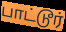
பாட்டூர்